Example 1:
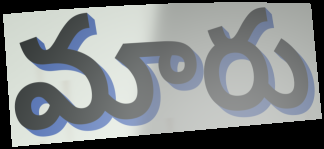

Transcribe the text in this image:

మారు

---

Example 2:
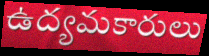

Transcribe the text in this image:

ఉద్యమకారులు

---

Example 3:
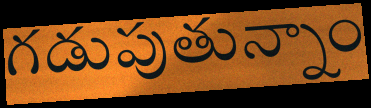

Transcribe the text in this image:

గడుపుతున్నాం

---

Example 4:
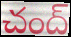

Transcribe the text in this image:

చంద్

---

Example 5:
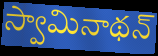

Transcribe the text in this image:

స్వామినాథన్